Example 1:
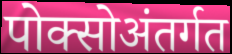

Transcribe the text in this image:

पोक्सोअंतर्गत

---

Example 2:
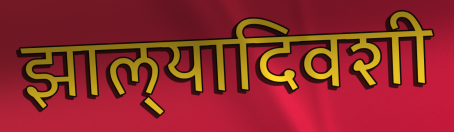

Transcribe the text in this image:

झाल्यादिवशी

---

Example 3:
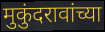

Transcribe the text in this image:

मुकुंदरावांच्या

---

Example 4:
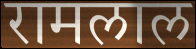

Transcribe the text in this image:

रामलाल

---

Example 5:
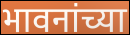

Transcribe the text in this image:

भावनांच्या